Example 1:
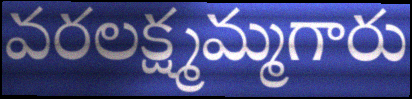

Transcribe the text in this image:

వరలక్ష్మమ్మగారు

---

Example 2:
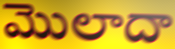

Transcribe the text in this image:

మొలాదా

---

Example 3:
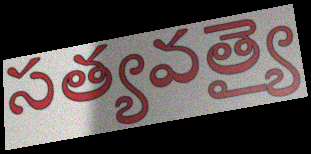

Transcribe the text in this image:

సత్యవత్యై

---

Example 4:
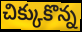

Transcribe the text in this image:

చిక్కుకొన్న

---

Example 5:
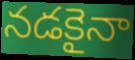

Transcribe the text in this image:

నడకైనా